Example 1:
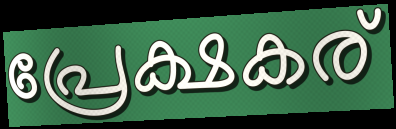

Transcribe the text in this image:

പ്രേക്ഷകര്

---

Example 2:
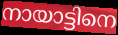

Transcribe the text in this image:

നായാട്ടിനെ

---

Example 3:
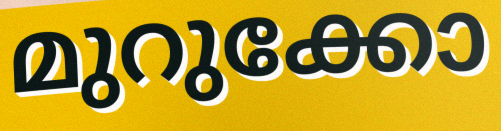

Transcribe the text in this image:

മുറുക്കോ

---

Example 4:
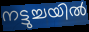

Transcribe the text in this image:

നട്ടുച്ചയിൽ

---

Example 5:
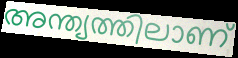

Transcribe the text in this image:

അന്ത്യത്തിലാണ്